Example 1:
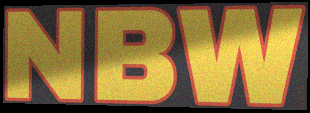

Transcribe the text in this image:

NBW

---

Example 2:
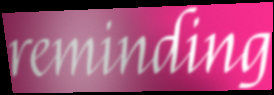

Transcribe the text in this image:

reminding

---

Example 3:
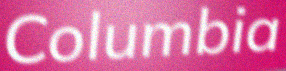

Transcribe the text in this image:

Columbia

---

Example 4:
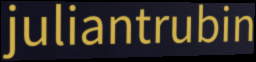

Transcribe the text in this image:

juliantrubin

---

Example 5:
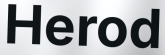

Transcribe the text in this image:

Herod